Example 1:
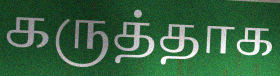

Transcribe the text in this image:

கருத்தாக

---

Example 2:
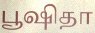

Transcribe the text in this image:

பூஷிதா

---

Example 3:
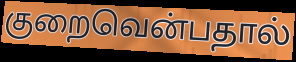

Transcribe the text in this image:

குறைவென்பதால்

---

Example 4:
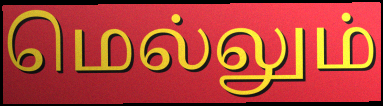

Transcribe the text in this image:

மெல்லும்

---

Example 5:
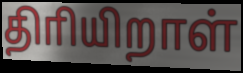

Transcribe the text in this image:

திரியிறாள்